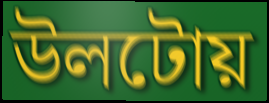
উলটোয়